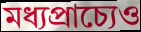
মধ্যপ্রাচ্যেও